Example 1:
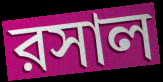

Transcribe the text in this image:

রসাল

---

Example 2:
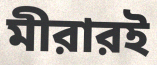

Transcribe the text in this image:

মীরারই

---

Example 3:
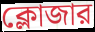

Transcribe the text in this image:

ক্লোজার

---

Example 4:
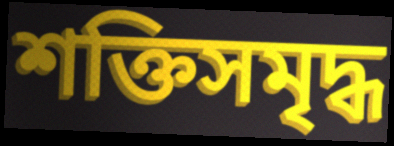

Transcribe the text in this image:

শক্তিসমৃদ্ধ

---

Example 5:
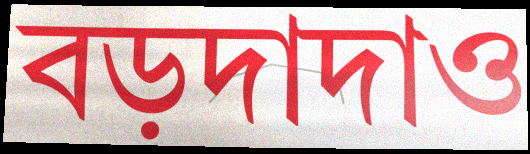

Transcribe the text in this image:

বড়দাদাও